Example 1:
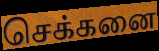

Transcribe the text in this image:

செக்கனை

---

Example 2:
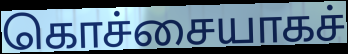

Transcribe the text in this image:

கொச்சையாகச்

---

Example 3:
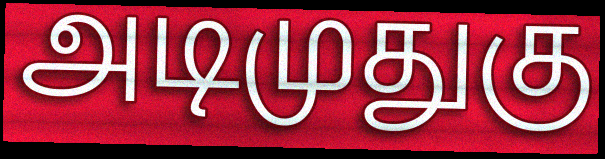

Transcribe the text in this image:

அடிமுதுகு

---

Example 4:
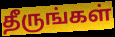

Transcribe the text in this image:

தீருங்கள்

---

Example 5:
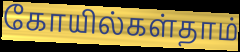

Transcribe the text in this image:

கோயில்கள்தாம்